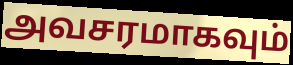
அவசரமாகவும்